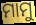
ମାମୁ